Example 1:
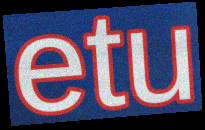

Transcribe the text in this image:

etu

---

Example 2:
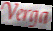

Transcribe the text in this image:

Verga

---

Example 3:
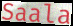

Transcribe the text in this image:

Saala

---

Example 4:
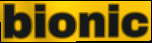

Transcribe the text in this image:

bionic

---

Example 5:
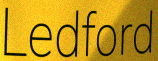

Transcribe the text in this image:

Ledford